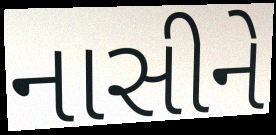
નાસીને